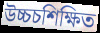
উচ্চচশিক্ষিত